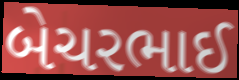
બેચરભાઈ